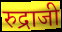
रुद्राजी